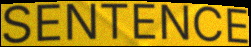
SENTENCE